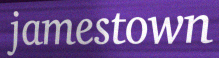
jamestown